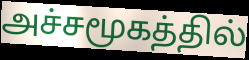
அச்சமூகத்தில்